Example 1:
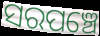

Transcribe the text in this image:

ସରପଞ୍ଚେ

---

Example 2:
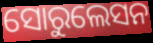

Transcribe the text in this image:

ସୋରୁଲେସନ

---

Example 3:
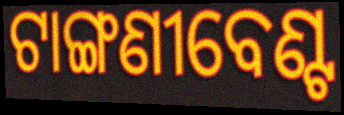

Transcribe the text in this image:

ଟାଙ୍ଗଣୀବେଣ୍ଟ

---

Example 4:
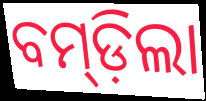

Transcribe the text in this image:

ବମ୍‍ଡ଼ିଲା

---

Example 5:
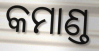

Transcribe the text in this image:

କମାଣ୍ଡ